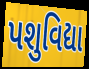
પશુવિદ્યા